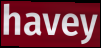
havey